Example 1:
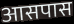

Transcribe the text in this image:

आसपास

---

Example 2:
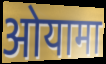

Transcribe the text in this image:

ओयामा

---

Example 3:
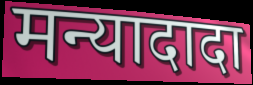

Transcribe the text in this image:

मन्यादादा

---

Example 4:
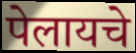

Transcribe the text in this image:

पेलायचे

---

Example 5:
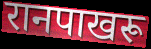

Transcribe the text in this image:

रानपाखरू